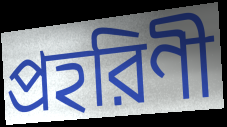
প্রহরিণী